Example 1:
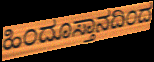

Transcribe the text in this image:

ಹಿಂದೂಸ್ತಾನದಿಂದ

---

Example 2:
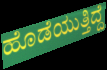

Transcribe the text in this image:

ಹೊಡೆಯುತ್ತಿದ್ದೆ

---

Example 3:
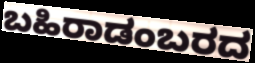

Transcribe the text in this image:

ಬಹಿರಾಡಂಬರದ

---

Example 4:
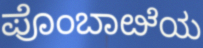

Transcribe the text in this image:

ಪೊಂಬಾೞೆಯ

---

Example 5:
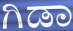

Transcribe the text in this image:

ಗಿಡಾ